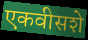
एकवीसशे